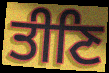
ਤੀਣਿ